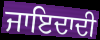
ਜਾਇਦਾਦੀ